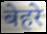
बेहरे